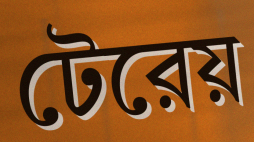
টেরেয়